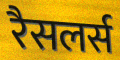
रैसलर्स